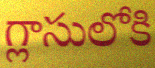
గ్లాసులోకి